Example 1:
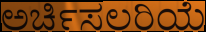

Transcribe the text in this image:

ಅರ್ಚಿಸಲರಿಯೆ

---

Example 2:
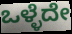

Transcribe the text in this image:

ಒಳ್ಳೆದೇ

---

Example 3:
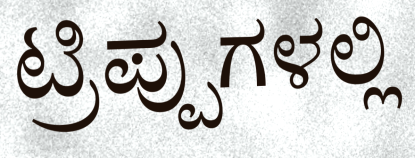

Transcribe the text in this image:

ಟ್ರಿಪ್ಪುಗಳಲ್ಲಿ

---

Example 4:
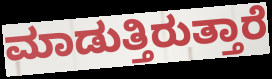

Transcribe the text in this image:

ಮಾಡುತ್ತಿರುತ್ತಾರೆ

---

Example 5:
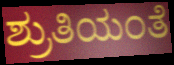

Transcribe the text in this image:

ಶ್ರುತಿಯಂತೆ